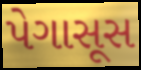
પેગાસૂસ